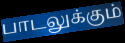
பாடலுக்கும்